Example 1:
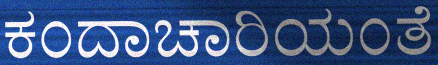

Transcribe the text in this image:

ಕಂದಾಚಾರಿಯಂತೆ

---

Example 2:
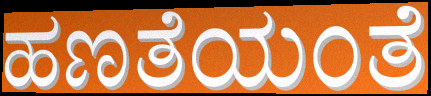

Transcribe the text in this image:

ಹಣತೆಯಂತೆ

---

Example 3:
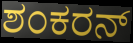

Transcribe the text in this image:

ಶಂಕರನ್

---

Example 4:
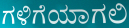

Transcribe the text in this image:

ಗಳಿಗೆಯಾಗಲಿ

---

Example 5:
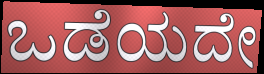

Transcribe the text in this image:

ಒಡೆಯದೇ